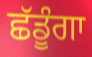
ਛੱਡੂੰਗਾ